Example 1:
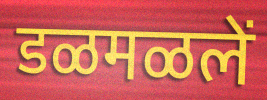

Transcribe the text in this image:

डळमळलें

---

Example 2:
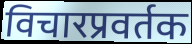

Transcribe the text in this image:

विचारप्रवर्तक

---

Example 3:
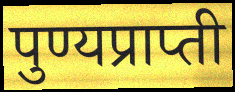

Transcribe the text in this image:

पुण्यप्राप्ती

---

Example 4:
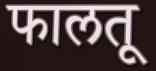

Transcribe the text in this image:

फालतू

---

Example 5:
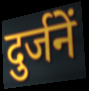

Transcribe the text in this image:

दुर्जनें